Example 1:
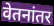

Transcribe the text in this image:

वेतनांतर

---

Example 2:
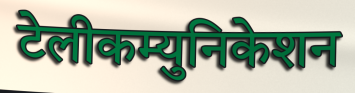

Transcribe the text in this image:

टेलीकम्युनिकेशन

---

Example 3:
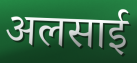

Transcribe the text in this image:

अलसाई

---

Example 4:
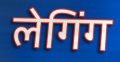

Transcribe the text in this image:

लेगिंग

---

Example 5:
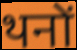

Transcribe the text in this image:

थनों